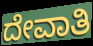
ದೇವಾತಿ